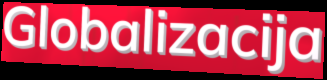
Globalizacija